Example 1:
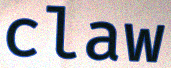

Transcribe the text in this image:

claw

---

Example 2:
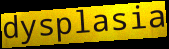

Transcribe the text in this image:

dysplasia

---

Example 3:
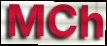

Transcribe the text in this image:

MCh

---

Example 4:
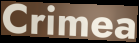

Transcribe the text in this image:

Crimea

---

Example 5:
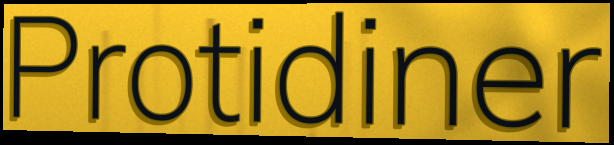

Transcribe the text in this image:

Protidiner